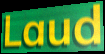
Laud